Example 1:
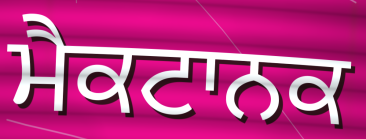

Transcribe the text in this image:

ਮੈਕਟਾਨਕ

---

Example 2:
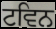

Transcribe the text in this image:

ਟਵਿਨ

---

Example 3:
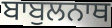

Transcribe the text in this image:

ਬਾਬੁਲਨਾਥ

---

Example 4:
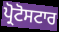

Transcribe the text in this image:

ਪ੍ਰੋਟੋਸਟਾਰ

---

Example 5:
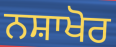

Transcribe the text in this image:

ਨਸ਼ਾਖੋਰ